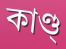
কাণ্ড্